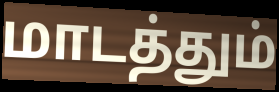
மாடத்தும்